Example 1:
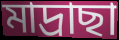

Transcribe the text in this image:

মাদ্ৰাছা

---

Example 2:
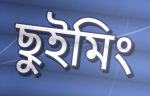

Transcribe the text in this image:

ছুইমিং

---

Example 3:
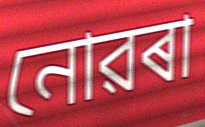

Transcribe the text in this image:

নোৱৰা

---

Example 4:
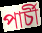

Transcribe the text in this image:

পাৰ্চী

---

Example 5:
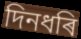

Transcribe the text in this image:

দিনধৰি